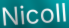
Nicoll